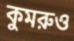
কুমরুও